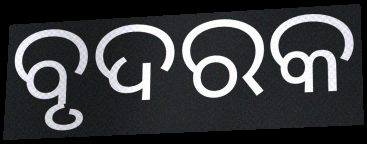
ବୃଦରକ